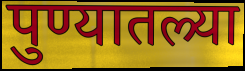
पुण्यातल्या